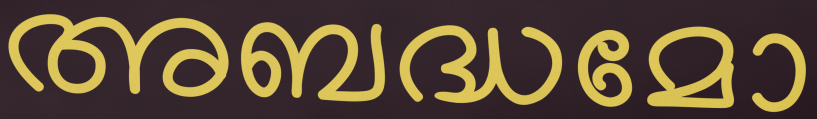
അബദ്ധമോ